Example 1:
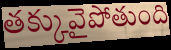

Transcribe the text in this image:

తక్కువైపోతుంది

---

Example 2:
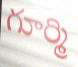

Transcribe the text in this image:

గూర్మి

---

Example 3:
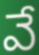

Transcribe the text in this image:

వే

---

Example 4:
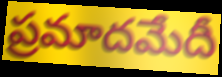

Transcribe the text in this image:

ప్రమాదమేదీ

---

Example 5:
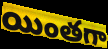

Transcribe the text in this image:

యింతగా